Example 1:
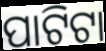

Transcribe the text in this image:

ପାଟିଟା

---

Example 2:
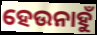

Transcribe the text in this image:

ହେଉନାହୁଁ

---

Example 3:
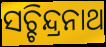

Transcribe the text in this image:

ସଚ୍ଚିନ୍ଦ୍ରନାଥ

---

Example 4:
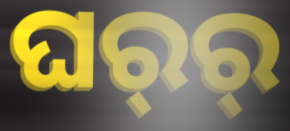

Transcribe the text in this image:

ଘର୍‍ର୍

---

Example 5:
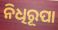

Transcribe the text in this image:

ନିଧିରୂପା